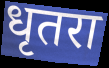
धृतरा